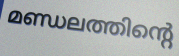
മണ്ഡലത്തിന്റെ